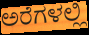
ಅರೆಗಳಲ್ಲಿ